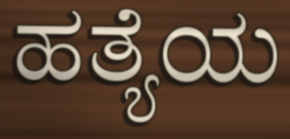
ಹತ್ಯೆಯ